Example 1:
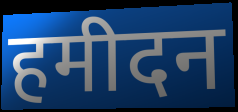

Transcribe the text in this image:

हमीदन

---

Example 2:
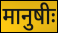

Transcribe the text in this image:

मानुषीः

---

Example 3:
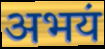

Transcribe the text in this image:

अभयं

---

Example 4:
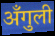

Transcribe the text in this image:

अँगुली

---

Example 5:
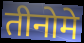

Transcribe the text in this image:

तीनोमे